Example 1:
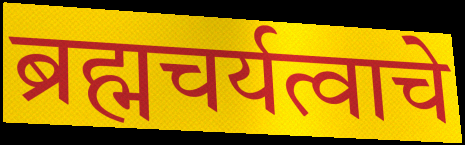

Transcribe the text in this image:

ब्रह्मचर्यत्वाचे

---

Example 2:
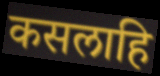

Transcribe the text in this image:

कसलाहि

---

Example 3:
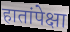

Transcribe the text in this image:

हातांपेक्षा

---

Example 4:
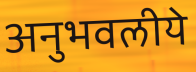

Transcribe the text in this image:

अनुभवलीये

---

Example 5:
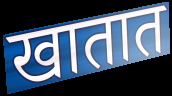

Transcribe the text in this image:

खातात